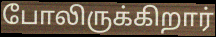
போலிருக்கிறார்